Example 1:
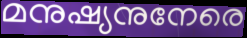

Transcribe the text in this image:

മനുഷ്യനുനേരെ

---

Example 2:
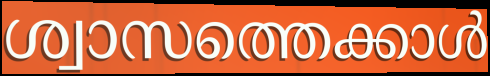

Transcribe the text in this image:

ശ്വാസത്തെക്കാൾ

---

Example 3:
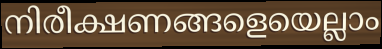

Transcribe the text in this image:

നിരീക്ഷണങ്ങളെയെല്ലാം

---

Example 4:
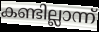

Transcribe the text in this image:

കണ്ടില്ലാന്ന്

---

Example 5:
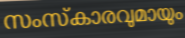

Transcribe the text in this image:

സംസ്‌കാരവുമായും